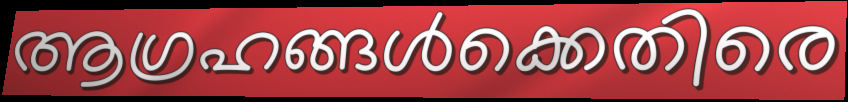
ആഗ്രഹങ്ങൾക്കെതിരെ